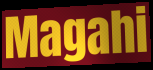
Magahi